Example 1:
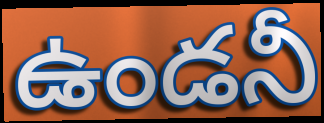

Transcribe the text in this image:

ఉండనీ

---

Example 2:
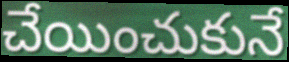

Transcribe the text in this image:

చేయించుకునే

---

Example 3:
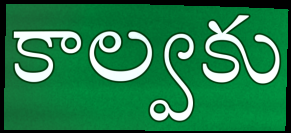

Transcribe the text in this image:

కాల్వకు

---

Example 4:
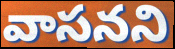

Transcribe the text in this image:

వాసనని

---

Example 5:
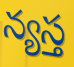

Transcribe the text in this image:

న్యస్త